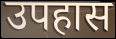
उपहास